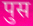
पुस